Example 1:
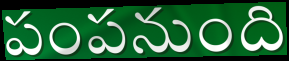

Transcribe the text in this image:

పంపనుంది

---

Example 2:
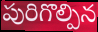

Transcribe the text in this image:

పురిగొల్పిన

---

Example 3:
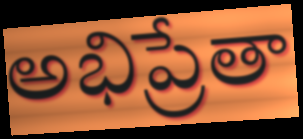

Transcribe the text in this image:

అభిప్రేతా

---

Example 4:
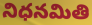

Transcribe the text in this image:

నిధనమితి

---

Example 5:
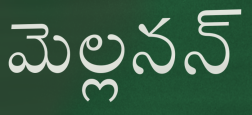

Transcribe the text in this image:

మెల్లనన్